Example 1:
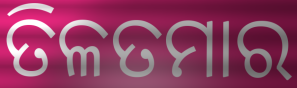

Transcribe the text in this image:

ତିଳତମାର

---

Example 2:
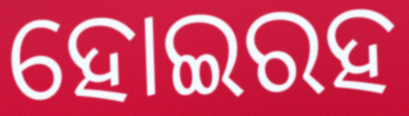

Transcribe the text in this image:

ହୋଇରହ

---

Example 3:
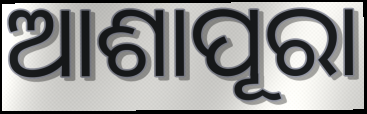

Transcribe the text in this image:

ଆଶାପୂରା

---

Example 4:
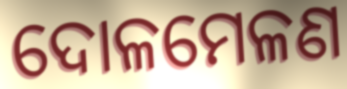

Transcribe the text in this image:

ଦୋଳମେଳଣ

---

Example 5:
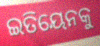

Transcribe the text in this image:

ଇତିୟେନକୁ